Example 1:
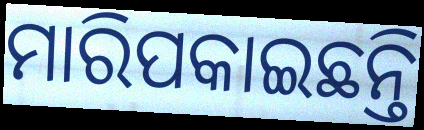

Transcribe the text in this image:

ମାରିପକାଇଛନ୍ତି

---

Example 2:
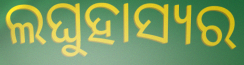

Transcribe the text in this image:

ଲଘୁହାସ୍ୟର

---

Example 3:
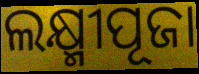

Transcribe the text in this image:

ଲକ୍ଷ୍ମୀପୂଜା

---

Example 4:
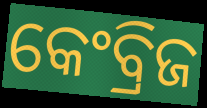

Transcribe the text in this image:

କେଂବ୍ରିଜ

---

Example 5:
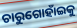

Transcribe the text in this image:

ଚାରୁଗୋହାଁଇକୁ